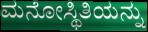
ಮನೋಸ್ಥಿತಿಯನ್ನು